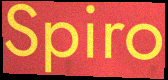
Spiro